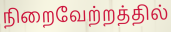
நிறைவேற்றத்தில்